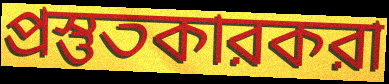
প্রস্তুতকারকরা